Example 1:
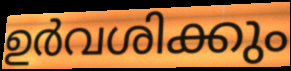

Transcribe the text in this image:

ഉർവശിക്കും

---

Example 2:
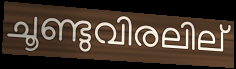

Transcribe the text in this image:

ചൂണ്ടുവിരലില്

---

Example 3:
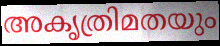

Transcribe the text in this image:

അകൃത്രിമതയും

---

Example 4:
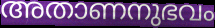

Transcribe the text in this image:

അതാണനുഭവം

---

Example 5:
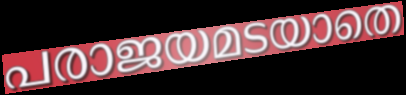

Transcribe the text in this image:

പരാജയമടയാതെ